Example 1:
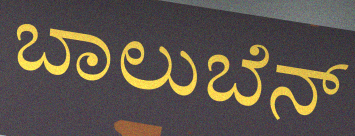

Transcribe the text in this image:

ಬಾಲುಬೆನ್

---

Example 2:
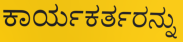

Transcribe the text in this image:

ಕಾರ್ಯಕರ್ತರನ್ನು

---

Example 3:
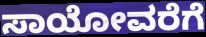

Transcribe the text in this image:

ಸಾಯೋವರೆಗೆ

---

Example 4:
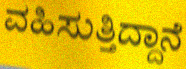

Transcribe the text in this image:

ವಹಿಸುತ್ತಿದ್ದಾನೆ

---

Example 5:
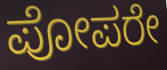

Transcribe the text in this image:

ಪೋಪರೇ